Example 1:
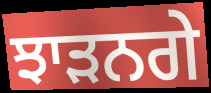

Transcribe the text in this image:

ਝਾੜਨਗੇ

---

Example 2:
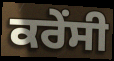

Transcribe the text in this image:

ਕਰੇੰਸੀ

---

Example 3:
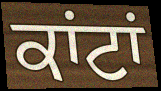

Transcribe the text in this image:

ਕਾਂਟਾਂ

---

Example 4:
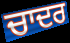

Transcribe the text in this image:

ਚਾਦਰ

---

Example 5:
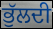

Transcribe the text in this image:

ਭੁੱਲਦੀ